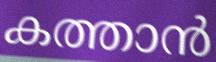
കത്താൻ